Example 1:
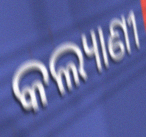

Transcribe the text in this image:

କଲ୍ୟାଣୀ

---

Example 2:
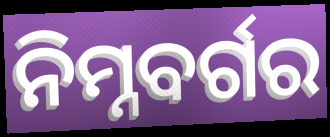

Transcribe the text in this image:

ନିମ୍ନବର୍ଗର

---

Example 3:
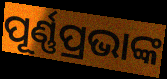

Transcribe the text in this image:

ପୂର୍ଣ୍ଣପ୍ରଭାଙ୍କ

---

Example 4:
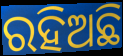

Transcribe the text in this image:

ରହିଅଛି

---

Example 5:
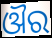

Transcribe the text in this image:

ଔର